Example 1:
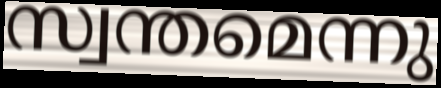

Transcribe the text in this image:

സ്വന്തമെന്നു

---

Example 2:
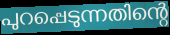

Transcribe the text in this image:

പുറപ്പെടുന്നതിന്റെ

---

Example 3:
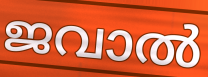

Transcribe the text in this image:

ജവാൽ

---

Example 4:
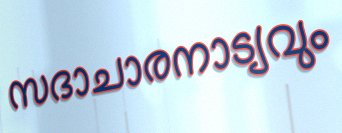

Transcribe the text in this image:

സദാചാരനാട്യവും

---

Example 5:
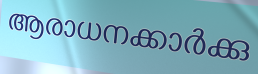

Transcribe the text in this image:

ആരാധനക്കാർക്കു